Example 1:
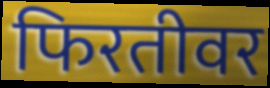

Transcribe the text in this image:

फिरतीवर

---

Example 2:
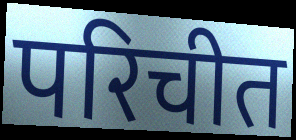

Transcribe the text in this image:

परिचीत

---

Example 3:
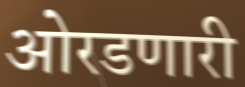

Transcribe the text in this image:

ओरडणारी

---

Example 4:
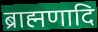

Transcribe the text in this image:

ब्राह्मणादि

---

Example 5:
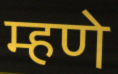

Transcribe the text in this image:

म्हणे